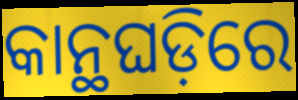
କାନ୍ଥଘଡ଼ିରେ